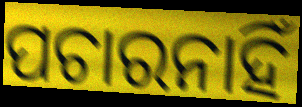
ପଚାରନାହିଁ